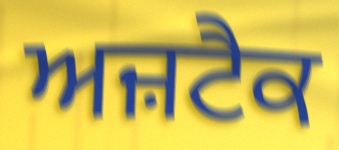
ਅਜ਼ਟੈਕ